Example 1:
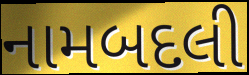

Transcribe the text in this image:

નામબદલી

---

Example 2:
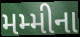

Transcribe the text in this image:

મમ્મીના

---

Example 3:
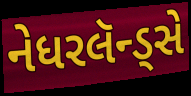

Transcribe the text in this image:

નેધરલૅન્ડ્સે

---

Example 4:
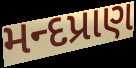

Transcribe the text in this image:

મન્દપ્રાણ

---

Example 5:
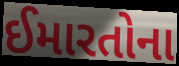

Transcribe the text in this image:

ઈમારતોના